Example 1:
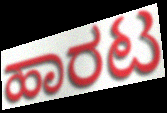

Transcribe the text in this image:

ಹಾರಟ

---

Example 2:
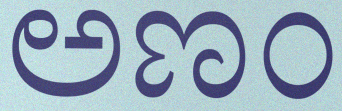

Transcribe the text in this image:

ಅಣಂ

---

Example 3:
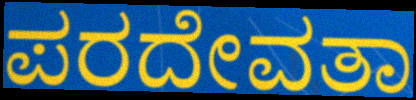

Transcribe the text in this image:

ಪರದೇವತಾ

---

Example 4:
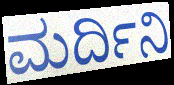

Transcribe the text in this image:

ಮರ್ದಿನಿ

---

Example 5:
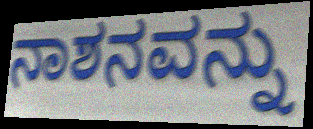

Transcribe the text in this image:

ನಾಶನವನ್ನು